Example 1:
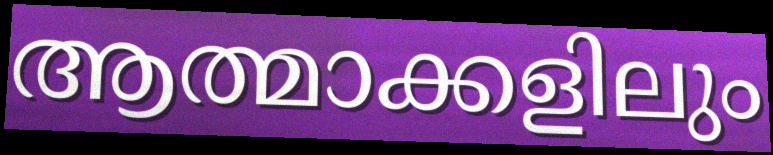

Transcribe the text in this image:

ആത്മാക്കളിലും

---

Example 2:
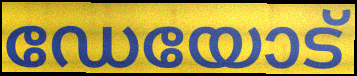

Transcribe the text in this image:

ഡേയോട്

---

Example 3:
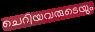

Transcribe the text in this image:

ചെറിയവരുടെയും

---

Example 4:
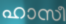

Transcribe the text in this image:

ഹാസീ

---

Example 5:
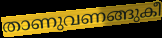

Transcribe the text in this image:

താണുവണങ്ങുകീ